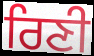
ਰਿਣੀ